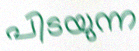
പിടയുന്ന